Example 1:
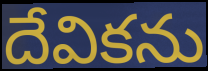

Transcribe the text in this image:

దేవికను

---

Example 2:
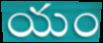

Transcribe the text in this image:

యం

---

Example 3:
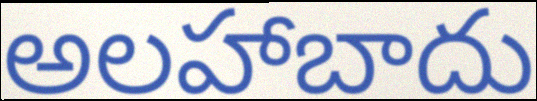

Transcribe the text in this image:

అలహాబాదు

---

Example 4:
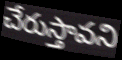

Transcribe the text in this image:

చేరుస్తావని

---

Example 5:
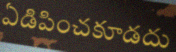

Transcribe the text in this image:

ఏడిపించకూడదు